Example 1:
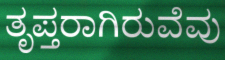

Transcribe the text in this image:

ತೃಪ್ತರಾಗಿರುವೆವು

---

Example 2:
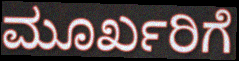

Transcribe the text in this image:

ಮೂರ್ಖರಿಗೆ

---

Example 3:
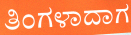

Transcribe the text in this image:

ತಿಂಗಳಾದಾಗ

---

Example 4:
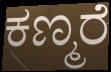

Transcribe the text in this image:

ಕಣ್ಮರೆ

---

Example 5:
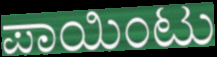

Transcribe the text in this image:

ಪಾಯಿಂಟು